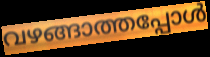
വഴങ്ങാത്തപ്പോൾ